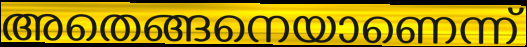
അതെങ്ങനെയാണെന്ന്